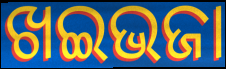
ଖଇଭଜା